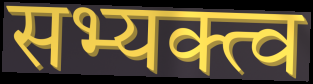
सभ्यक्त्व